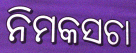
ନିମକସଚା